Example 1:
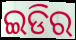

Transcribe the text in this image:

ଇଡିର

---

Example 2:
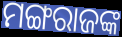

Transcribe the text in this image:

ମଙ୍ଗରାଜଙ୍କ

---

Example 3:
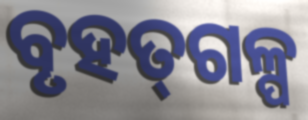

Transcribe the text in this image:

ବୃହତ୍‌ଗଳ୍ପ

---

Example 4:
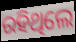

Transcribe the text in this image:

ରହିଥିଲେ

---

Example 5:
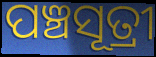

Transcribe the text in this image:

ପଞ୍ଚସୂତ୍ରୀ